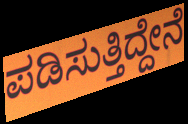
ಪಡಿಸುತ್ತಿದ್ದೇನೆ